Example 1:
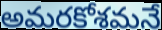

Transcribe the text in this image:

అమరకోశమనే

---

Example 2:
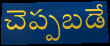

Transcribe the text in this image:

చెప్పబడే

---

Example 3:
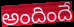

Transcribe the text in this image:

అందిందే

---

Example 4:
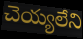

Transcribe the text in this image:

చెయ్యలేని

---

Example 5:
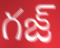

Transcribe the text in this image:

గజ్